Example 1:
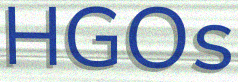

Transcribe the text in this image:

HGOs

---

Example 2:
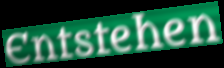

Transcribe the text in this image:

Entstehen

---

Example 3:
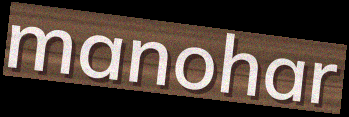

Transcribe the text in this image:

manohar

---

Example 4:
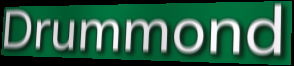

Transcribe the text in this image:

Drummond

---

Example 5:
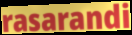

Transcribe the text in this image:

rasarandi